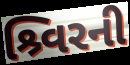
શ્ર્વિરની